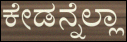
ಕೇಡನ್ನೆಲ್ಲಾ